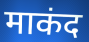
माकंद